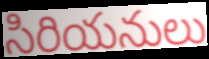
సిరియనులు